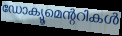
ഡോക്യൂമെന്ററികൾ